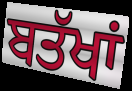
ਬਤੱਖਾਂ